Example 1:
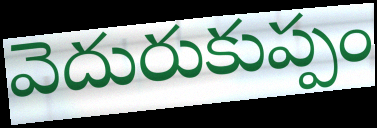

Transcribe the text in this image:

వెదురుకుప్పం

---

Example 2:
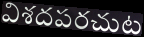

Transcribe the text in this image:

విశదపరచుట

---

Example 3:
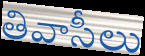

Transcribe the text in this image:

తివాసీలు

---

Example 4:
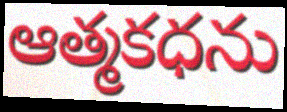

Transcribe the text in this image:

ఆత్మకధను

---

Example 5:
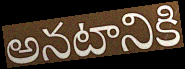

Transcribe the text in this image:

అనటానికి